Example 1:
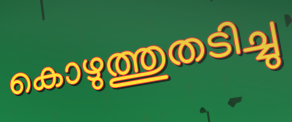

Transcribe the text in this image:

കൊഴുത്തുതടിച്ചു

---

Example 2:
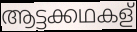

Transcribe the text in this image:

ആട്ടക്കഥകള്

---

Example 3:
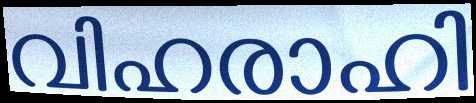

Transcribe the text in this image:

വിഹരാഹി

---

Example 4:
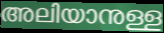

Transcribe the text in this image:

അലിയാനുള്ള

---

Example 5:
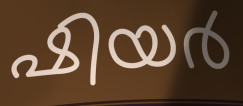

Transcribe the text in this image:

ഷിയർ